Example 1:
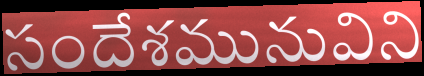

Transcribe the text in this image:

సందేశమునువిని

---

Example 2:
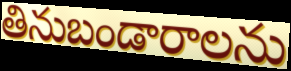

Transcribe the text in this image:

తినుబండారాలను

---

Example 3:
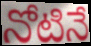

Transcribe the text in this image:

నోటినే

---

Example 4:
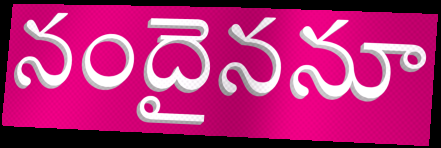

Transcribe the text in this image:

నందైననూ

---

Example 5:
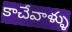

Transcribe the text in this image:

కాచేవాళ్ళు